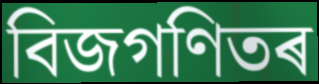
বিজগণিতৰ